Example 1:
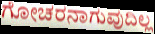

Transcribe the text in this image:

ಗೋಚರನಾಗುವುದಿಲ್ಲ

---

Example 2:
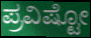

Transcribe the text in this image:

ಪ್ರವಿಷ್ಟೋ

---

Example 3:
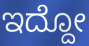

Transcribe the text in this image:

ಇದ್ದೋ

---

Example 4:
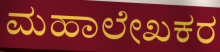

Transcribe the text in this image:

ಮಹಾಲೇಖಕರ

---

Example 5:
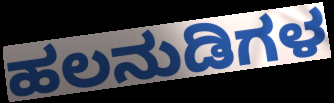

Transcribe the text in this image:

ಹಲನುಡಿಗಳ